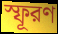
স্ফূরণ